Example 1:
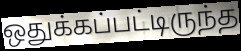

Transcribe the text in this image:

ஒதுக்கப்பட்டிருந்த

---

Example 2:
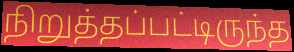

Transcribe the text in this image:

நிறுத்தப்பட்டிருந்த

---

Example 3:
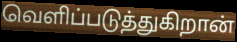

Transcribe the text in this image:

வெளிப்படுத்துகிறான்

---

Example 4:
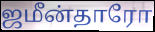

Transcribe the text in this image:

ஜமீன்தாரோ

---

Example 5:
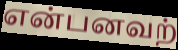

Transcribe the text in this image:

என்பனவற்